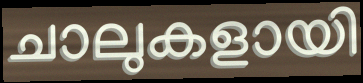
ചാലുകളായി